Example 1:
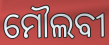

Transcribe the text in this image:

ମୌଲବୀ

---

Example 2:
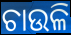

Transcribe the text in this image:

ଚାଉଳି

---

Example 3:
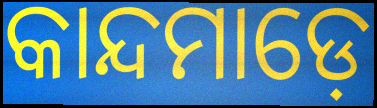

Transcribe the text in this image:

କାନ୍ଦମାଡ଼େ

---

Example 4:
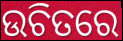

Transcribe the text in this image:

ଉଚିତରେ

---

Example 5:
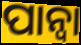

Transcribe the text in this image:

ପାନ୍ଵା